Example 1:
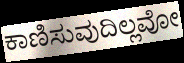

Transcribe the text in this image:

ಕಾಣಿಸುವುದಿಲ್ಲವೋ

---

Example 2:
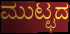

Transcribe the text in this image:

ಮುಟ್ಟದ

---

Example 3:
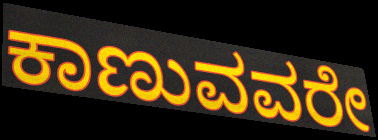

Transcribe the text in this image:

ಕಾಣುವವರೇ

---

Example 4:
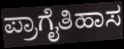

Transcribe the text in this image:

ಪ್ರಾಗೈತಿಹಾಸ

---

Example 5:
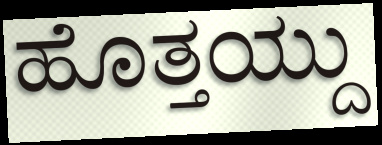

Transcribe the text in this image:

ಹೊತ್ತಯ್ದು